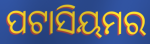
ପଟାସିୟମର